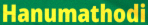
Hanumathodi